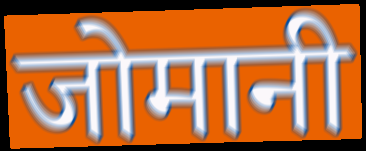
जोमानी